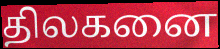
திலகனை